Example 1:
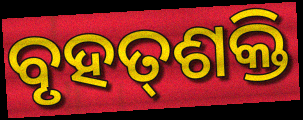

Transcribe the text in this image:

ବୃହତ୍‌ଶକ୍ତି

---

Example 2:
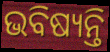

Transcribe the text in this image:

ଭବିଷ୍ୟନ୍ତି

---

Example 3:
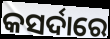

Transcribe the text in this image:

କସର୍ଦାରେ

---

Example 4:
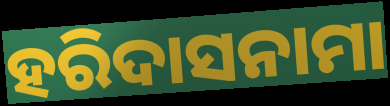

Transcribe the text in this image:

ହରିଦାସନାମା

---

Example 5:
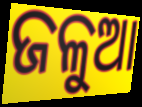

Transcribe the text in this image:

ଜଳୁଆ